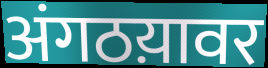
अंगठय़ावर